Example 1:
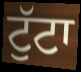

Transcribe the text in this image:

ਟੁੱਟਾ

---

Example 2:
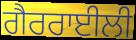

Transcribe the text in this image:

ਗੈਰਰਾਈਲੀ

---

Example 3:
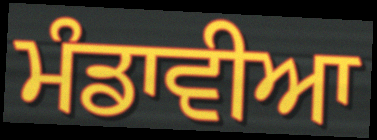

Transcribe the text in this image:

ਮੰਡਾਵੀਆ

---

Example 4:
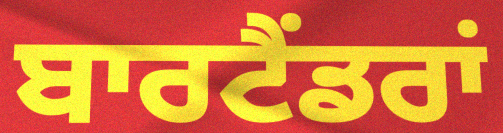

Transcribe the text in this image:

ਬਾਰਟੈਂਡਰਾਂ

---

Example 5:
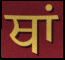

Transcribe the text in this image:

ਥਾਂ